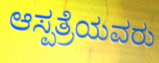
ಆಸ್ಪತ್ರೆಯವರು